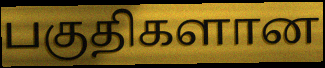
பகுதிகளான